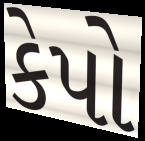
કેપો